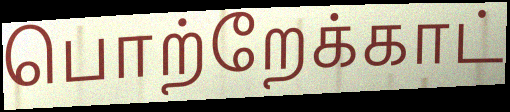
பொற்றேக்காட்